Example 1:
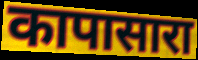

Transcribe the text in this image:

कापासारा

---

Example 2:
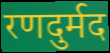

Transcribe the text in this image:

रणदुर्मद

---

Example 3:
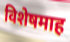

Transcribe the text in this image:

विशेषमाह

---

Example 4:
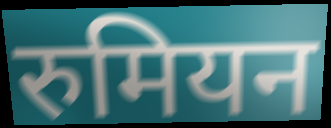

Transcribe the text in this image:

रुमियन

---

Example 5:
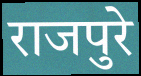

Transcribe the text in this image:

राजपुरे